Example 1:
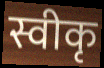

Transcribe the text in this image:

स्वीकृ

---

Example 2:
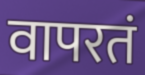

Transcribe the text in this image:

वापरतं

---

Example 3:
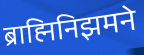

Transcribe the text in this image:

ब्राह्मिनिझमने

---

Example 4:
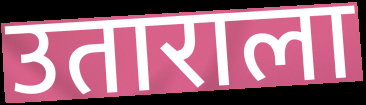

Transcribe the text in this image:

उताराला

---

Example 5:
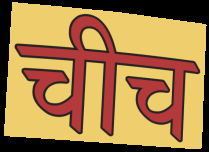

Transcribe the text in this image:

चीच